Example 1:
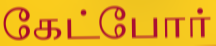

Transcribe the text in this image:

கேட்போர்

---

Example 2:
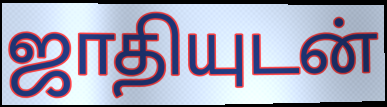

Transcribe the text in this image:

ஜாதியுடன்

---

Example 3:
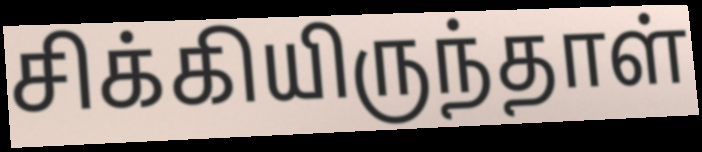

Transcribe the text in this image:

சிக்கியிருந்தாள்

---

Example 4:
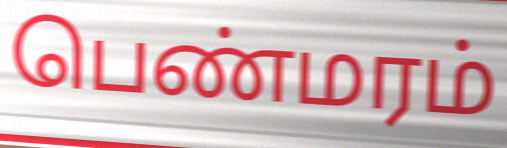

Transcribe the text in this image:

பெண்மரம்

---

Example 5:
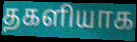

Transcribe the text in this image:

தகளியாக